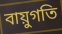
বায়ুগতি